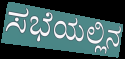
ಸಭೆಯಲ್ಲಿನ